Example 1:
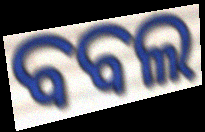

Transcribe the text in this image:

ବବଲ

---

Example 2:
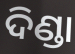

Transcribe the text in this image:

ଦିଣ୍ଡା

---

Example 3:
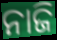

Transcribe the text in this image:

ନାଜି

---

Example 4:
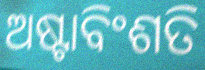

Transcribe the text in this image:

ଅଷ୍ଟାବିଂଶତି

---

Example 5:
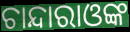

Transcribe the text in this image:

ଚାନ୍ଦାରାଓଙ୍କ